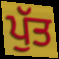
ਪੁੱਤ